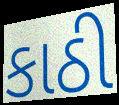
કાઠી